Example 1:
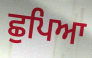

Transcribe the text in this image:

ਛੁਪਿਆ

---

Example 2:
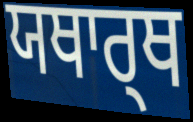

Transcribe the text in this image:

ਯਥਾਰ੍ਥ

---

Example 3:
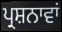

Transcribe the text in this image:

ਪ੍ਰਸ਼ਨਾਵਾਂ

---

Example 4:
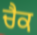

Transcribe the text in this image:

ਚੈਕ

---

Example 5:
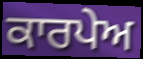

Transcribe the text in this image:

ਕਾਰਪੇਅ